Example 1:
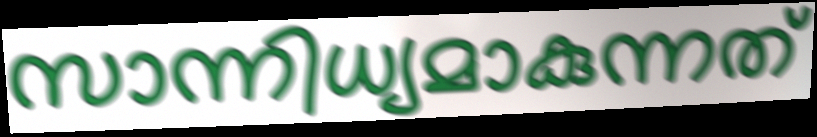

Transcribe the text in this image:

സാന്നിധ്യമാകുന്നത്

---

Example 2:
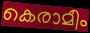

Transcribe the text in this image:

കെരാമീം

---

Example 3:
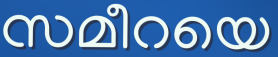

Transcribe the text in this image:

സമീറയെ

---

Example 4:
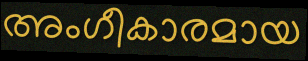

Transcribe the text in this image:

അംഗീകാരമായ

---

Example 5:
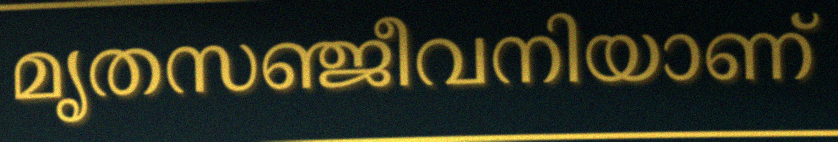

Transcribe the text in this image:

മൃതസഞ്ജീവനിയാണ്